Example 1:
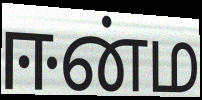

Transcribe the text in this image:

ஈன்ம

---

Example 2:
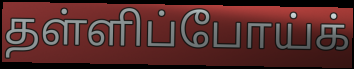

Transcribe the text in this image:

தள்ளிப்போய்க்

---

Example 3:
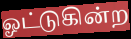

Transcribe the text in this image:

ஓட்டுகின்ற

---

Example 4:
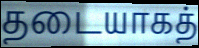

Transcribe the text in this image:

தடையாகத்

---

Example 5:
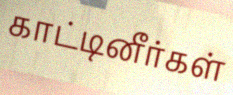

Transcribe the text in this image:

காட்டினீர்கள்